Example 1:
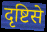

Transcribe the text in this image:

दृष्टिसे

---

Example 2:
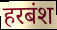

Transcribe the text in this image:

हरबंश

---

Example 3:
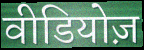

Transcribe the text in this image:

वीडियोज़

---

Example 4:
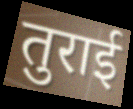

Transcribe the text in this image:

तुराई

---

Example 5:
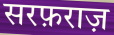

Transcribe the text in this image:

सरफ़राज़